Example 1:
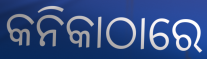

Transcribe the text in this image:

କନିକାଠାରେ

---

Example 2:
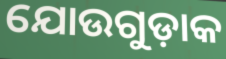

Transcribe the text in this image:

ଯୋଉଗୁଡ଼ାକ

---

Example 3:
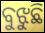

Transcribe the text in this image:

ବୁଝୁଛି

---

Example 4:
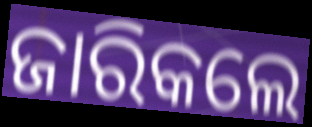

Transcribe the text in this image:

ଜାରିକଲେ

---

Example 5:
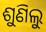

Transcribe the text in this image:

ଶୁଣିଲୁ